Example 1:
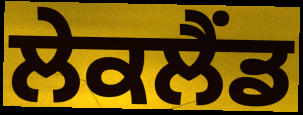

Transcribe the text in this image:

ਲੇਕਲੈਂਡ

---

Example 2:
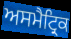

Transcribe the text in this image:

ਅਸਮੈਟ੍ਰਿਕ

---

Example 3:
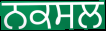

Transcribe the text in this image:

ਨਕਸਲ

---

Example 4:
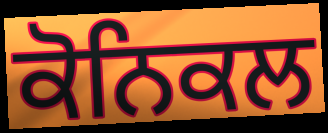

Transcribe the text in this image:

ਕੋਨਿਕਲ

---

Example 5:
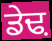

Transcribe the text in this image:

ਡੇਢ਼